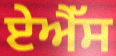
ਏਐੱਸ